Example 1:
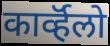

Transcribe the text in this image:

कार्व्हॅलो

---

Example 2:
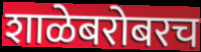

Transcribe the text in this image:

शाळेबरोबरच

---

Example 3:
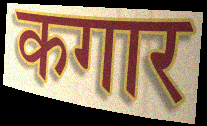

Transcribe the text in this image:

कगार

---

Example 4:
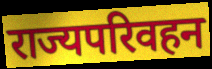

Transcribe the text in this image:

राज्यपरिवहन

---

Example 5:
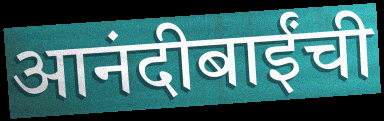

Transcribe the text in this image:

आनंदीबाईंची